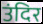
उंदिर